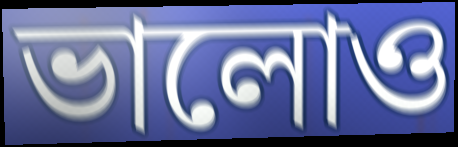
ভালোও